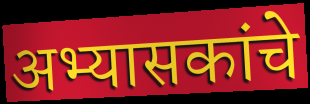
अभ्यासकांचे